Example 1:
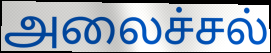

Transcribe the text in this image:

அலைச்சல்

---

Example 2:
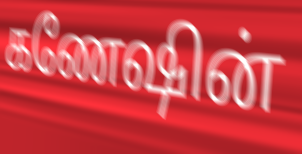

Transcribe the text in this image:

கணேஷின்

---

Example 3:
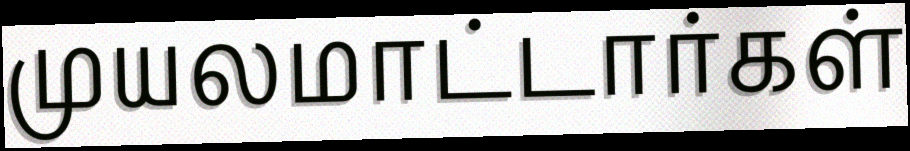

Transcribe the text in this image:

முயலமாட்டார்கள்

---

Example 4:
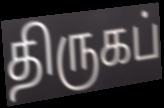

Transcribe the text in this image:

திருகப்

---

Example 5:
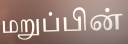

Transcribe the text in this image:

மறுப்பின்